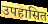
उपहासित